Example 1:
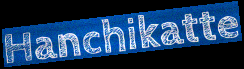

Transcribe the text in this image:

Hanchikatte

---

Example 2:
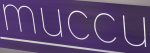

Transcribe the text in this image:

muccu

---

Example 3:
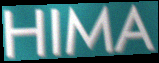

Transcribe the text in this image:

HIMA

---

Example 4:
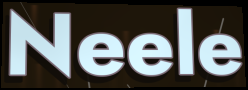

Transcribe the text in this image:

Neele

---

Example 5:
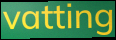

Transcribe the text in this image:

vatting